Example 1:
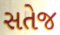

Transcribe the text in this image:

સતેજ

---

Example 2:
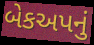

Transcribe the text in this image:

બેકઅપનું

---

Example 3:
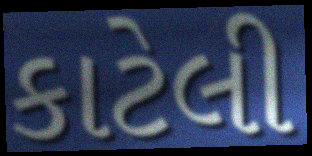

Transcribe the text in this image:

કાટેલી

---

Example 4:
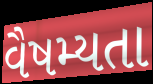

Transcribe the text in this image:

વૈષમ્યતા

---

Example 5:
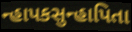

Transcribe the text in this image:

ન્હાપકસુન્હાપિતા